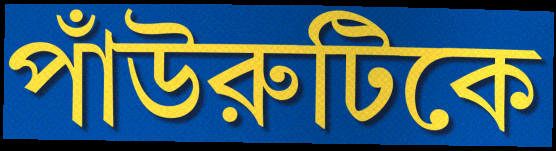
পাঁউরুটিকে